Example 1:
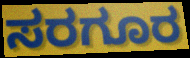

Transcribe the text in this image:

ಸರಗೂರ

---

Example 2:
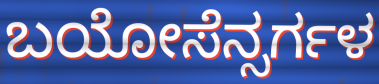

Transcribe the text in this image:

ಬಯೋಸೆನ್ಸರ್ಗಳ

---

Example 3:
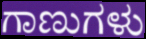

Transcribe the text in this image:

ಗಾಣುಗಳು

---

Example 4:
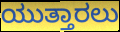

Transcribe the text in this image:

ಯುತ್ತಾರಲು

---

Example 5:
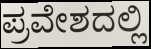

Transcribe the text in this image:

ಪ್ರವೇಶದಲ್ಲಿ